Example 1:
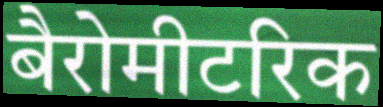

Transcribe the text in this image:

बैरोमीटरिक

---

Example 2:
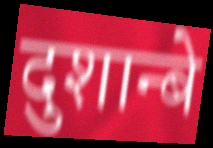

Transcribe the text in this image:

दुशान्बे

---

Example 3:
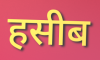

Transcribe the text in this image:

हसीब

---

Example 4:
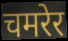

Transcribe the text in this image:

चमरेर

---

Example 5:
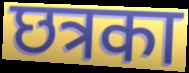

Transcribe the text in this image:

छत्रका